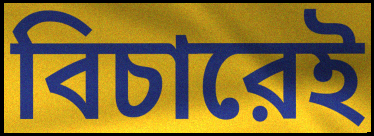
বিচারেই